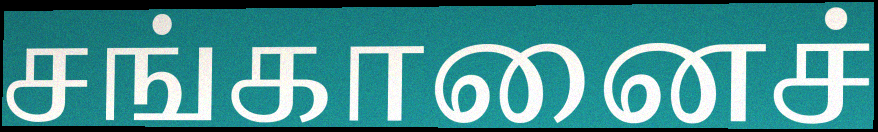
சங்கானைச்